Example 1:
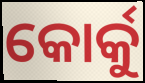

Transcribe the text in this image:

କୋର୍କୁ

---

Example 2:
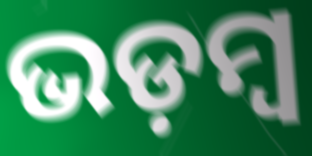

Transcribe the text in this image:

ଭଡ଼ମ୍ବ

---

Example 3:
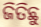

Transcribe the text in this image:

ଜିତିଛୁ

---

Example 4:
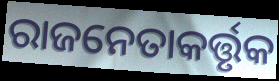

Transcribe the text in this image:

ରାଜନେତାକର୍ତ୍ତୃକ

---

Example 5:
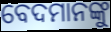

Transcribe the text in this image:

ବେଦମାନଙ୍କୁ